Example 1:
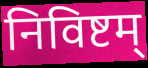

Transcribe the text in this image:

निविष्टम्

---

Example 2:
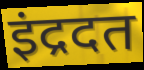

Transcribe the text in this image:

इंद्रदत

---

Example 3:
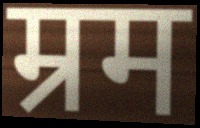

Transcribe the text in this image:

म्रम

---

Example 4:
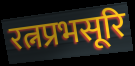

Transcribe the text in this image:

रत्नप्रभसूरि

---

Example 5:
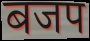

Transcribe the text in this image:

बजप